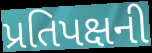
પ્રતિપક્ષની